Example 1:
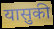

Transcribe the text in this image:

यासुकी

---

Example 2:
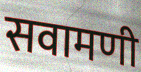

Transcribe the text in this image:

सवामणी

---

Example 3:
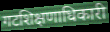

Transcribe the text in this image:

गटशिक्षणाधिकारी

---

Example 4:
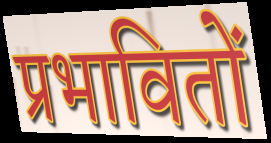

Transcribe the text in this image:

प्रभावितों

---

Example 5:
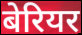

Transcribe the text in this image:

बेरियर